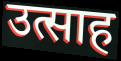
उत्‍साह